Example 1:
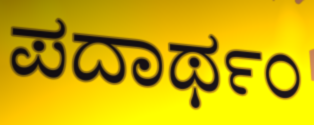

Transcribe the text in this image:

ಪದಾರ್ಥಂ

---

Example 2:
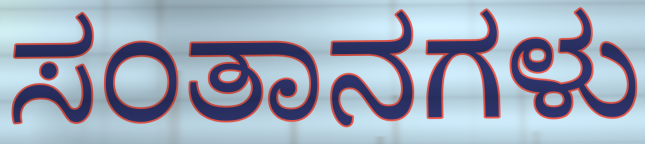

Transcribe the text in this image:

ಸಂತಾನಗಳು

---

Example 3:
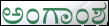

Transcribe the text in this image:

ಅಂಗಾಂಶ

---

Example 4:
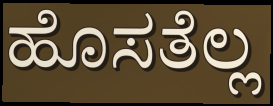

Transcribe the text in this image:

ಹೊಸತೆಲ್ಲ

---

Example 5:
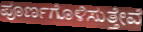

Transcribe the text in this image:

ಪೂರ್ಣಗೊಳಿಸುತ್ತೇವೆ